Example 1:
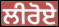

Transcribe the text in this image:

ਲੀਰੋਏ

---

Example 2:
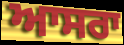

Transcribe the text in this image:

ਆਸਰਾ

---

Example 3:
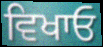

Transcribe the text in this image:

ਵਿਖਾਓ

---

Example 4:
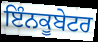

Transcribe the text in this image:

ਇੰਨਕੂਬੇਟਰ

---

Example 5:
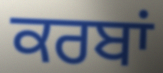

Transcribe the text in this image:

ਕਰਬਾਂ